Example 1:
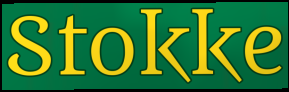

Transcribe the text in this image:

Stokke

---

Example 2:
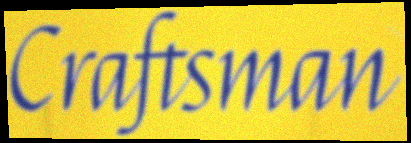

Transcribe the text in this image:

Craftsman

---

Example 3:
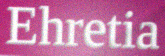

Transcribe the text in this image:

Ehretia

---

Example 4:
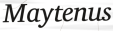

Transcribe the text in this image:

Maytenus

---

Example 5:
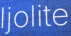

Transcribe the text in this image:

Ijolite